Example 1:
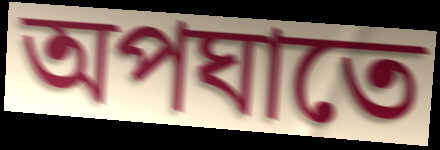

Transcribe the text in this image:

অপঘাতে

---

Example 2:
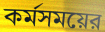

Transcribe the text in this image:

কর্মসময়ের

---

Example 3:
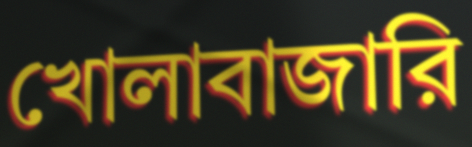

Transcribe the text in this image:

খোলাবাজারি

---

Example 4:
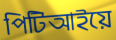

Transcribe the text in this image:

পিটিআইয়ে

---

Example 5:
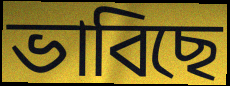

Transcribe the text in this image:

ভাবিছে